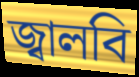
জ্বালবি